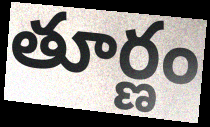
తూర్ణం